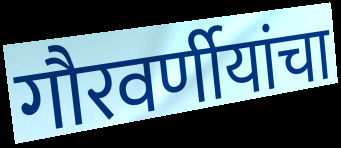
गौरवर्णीयांचा